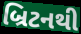
બ્રિટનથી